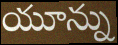
యూన్ను